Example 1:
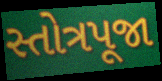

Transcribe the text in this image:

સ્તોત્રપૂજા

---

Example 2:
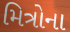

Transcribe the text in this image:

મિત્રોના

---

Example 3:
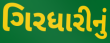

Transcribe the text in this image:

ગિરધારીનું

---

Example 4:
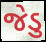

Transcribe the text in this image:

જેડુ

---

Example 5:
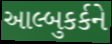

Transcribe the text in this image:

આલ્બુકર્કને